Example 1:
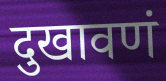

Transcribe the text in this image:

दुखावणं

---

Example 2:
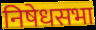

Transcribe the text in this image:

निषेधसभा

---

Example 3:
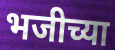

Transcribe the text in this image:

भजीच्या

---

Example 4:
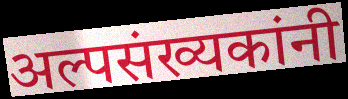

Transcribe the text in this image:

अल्पसंख्यकांनी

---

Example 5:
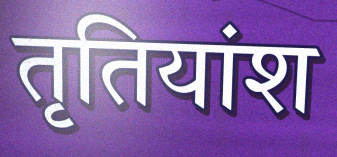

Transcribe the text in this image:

तृतियांश